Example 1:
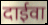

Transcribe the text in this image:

दाईवा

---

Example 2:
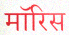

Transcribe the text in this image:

मॉरिस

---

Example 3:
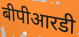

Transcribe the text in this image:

बीपीआरडी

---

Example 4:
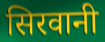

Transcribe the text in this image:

सिरवानी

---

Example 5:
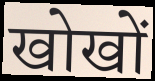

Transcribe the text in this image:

खोखों